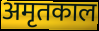
अमृतकाल